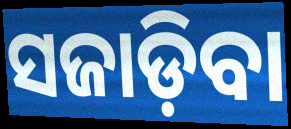
ସଜାଡ଼ିବା